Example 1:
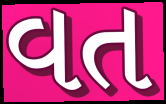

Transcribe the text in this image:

વત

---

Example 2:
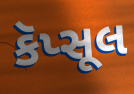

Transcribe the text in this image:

કૅપ્સૂલ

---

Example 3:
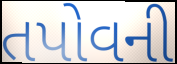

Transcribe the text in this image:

તપોવની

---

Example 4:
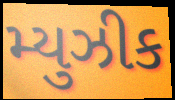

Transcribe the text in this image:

મ્યુઝીક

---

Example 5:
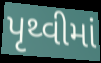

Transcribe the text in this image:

પૃથ્વીમાં